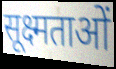
सूक्ष्मताओं